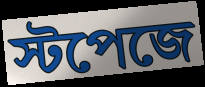
স্টপেজে